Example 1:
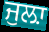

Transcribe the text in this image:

ਜੁਲ਼ਾ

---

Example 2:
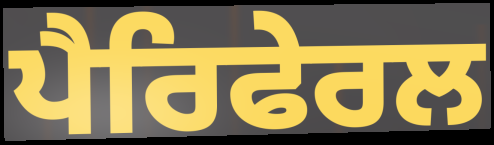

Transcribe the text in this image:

ਪੈਰਿਫੇਰਲ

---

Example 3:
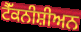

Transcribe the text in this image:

ਟੈੱਕਨੀਸ਼ੀਅਨ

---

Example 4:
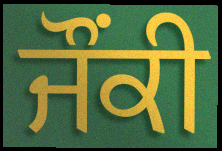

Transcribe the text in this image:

ਜੌਂਕੀ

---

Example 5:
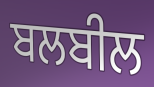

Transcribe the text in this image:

ਬਲਬੀਲ